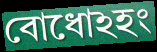
বোধোঽহং